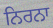
ਨਿਰਨਾ